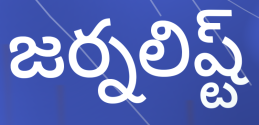
జర్నలిష్ట్